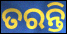
ତରନ୍ତି